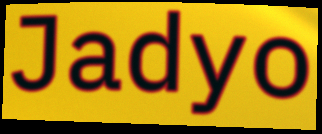
Jadyo